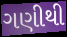
ગણીથી